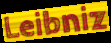
Leibniz